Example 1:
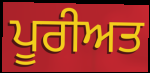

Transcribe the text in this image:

ਪੂਰੀਅਤ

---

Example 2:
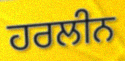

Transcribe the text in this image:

ਹਰਲੀਨ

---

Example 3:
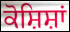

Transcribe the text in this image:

ਕੋਸ਼ਿਸ਼ਾਂ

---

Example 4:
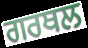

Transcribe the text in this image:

ਗਰਥਲ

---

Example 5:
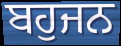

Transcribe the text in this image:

ਬਹੁਜਨ